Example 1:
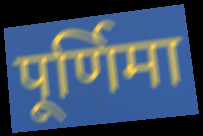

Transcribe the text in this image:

पूर्णिमा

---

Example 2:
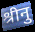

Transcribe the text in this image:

श्रीनु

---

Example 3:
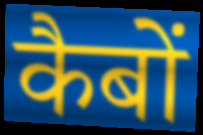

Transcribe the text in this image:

कैबों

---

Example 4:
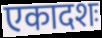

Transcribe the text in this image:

एकादशः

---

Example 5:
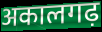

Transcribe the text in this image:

अकालगढ़